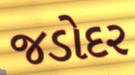
જડોદર